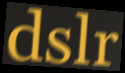
dslr